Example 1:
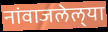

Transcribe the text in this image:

नांवाजलेल्या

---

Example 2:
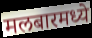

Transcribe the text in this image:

मलबारमध्ये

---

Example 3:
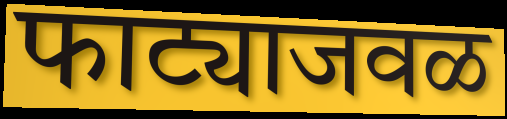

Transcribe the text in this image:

फाट्याजवळ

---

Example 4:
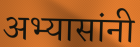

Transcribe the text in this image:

अभ्यासांनी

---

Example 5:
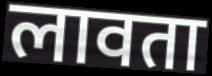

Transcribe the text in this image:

लावता